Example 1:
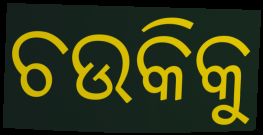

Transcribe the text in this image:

ଚଉକିକୁ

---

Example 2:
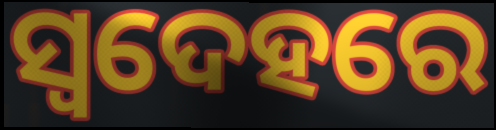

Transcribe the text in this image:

ସ୍ଵଦେହରେ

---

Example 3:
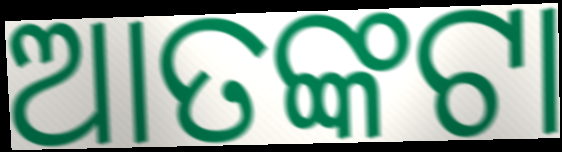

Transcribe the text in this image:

ଆତଙ୍କଟା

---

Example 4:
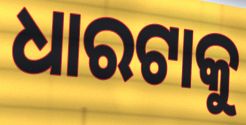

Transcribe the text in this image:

ଧାରଟାକୁ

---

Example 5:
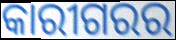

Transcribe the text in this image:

କାରୀଗରର